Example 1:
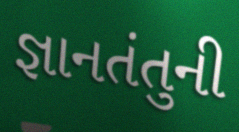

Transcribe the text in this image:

જ્ઞાનતંતુની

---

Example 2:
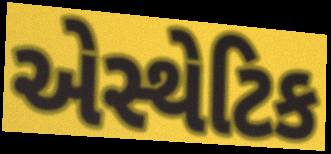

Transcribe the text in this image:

એસ્થેટિક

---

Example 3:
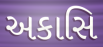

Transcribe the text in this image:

અકાસિ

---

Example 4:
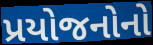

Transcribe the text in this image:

પ્રયોજનોનો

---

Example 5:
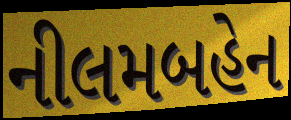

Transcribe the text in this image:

નીલમબહેન